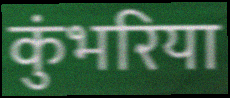
कुंभरिया